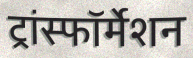
ट्रांस्फॉर्मेशन